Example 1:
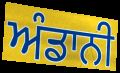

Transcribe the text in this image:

ਅੰਡਾਨੀ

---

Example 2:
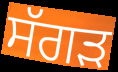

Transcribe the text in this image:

ਸੱਗੜ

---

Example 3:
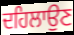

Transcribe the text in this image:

ਦਹਿਲਾਉਣ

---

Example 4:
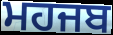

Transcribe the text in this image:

ਮਹਜਬ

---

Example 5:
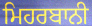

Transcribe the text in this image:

ਮਿਹਰਬਾਨੀ